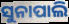
ସୁନାପାଲି